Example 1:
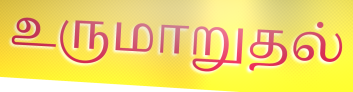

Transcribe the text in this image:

உருமாறுதல்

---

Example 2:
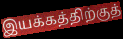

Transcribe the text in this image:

இயக்கத்திற்குத்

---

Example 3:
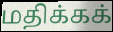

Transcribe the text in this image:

மதிக்கக்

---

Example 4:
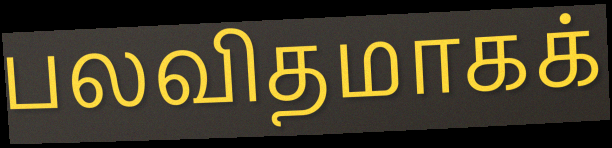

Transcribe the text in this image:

பலவிதமாகக்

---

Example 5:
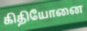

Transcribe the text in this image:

கிதியோனை